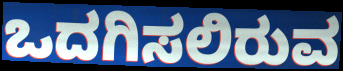
ಒದಗಿಸಲಿರುವ